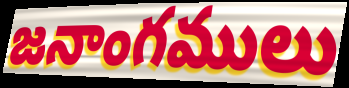
జనాంగములు